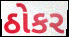
ઠોકર